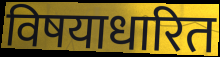
विषयाधारित